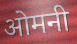
ओमनी